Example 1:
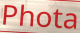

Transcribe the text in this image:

Phota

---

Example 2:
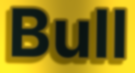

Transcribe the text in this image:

Bull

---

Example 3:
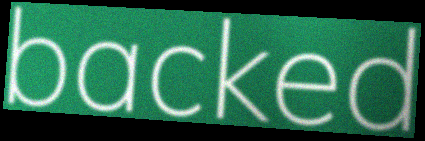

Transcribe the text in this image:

backed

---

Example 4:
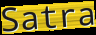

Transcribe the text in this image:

Satra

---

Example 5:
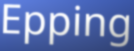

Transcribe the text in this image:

Epping